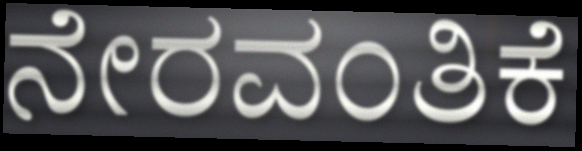
ನೇರವಂತಿಕೆ